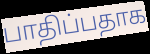
பாதிப்பதாக